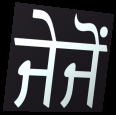
ਜੇਜੋਂ